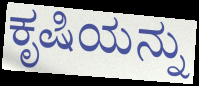
ಕೃಷಿಯನ್ನು